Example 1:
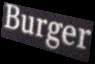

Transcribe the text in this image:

Burger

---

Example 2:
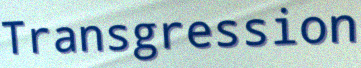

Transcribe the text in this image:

Transgression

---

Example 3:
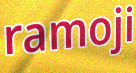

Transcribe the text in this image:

ramoji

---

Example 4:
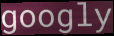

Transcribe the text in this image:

googly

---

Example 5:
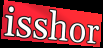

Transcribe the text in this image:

isshor